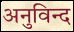
अनुविन्द